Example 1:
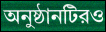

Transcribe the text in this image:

অনুষ্ঠানটিরও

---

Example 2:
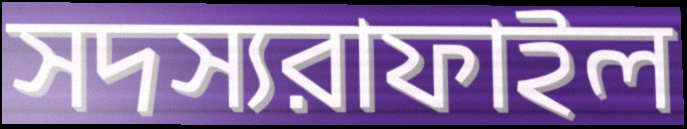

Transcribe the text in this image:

সদস্যরাফাইল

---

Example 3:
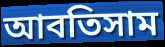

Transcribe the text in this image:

আবতিসাম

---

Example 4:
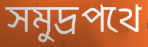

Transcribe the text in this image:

সমুদ্রপথে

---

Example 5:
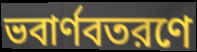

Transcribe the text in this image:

ভবার্ণবতরণে